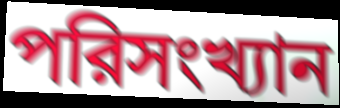
পরিসংখ্যান